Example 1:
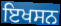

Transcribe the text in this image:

ਇਖਸਨ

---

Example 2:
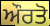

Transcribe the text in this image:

ਔਰਤੋ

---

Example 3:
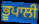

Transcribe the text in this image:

ਭੂਪਾਲੀ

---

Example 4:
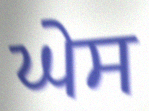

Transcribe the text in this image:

ਘੇਸ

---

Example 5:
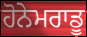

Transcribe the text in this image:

ਹੋਨੇਮਰਾਡੂ